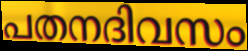
പതനദിവസം